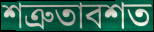
শত্রুতাবশত